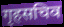
गृहसचिव